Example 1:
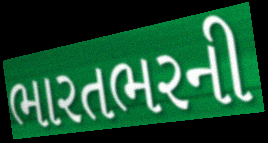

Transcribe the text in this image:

ભારતભરની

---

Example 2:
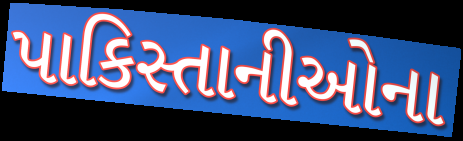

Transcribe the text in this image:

પાકિસ્તાનીઓના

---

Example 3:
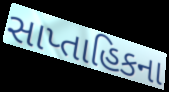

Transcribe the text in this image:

સાપ્તાહિકના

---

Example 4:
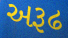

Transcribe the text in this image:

અરૂઢ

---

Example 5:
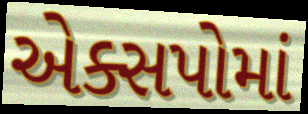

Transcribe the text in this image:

એક્સપોમાં